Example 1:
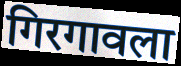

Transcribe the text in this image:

गिरगावला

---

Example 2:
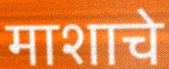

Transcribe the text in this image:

माशाचे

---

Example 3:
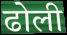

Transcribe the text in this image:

ढोली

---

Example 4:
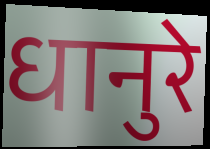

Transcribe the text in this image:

धानुरे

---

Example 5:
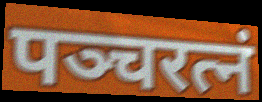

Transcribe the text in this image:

पञ्चरत्नं